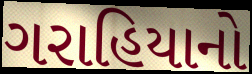
ગરાહિયાનો